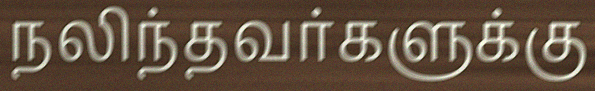
நலிந்தவர்களுக்கு